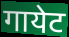
गायेट